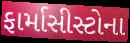
ફાર્માસીસ્ટોના